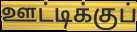
ஊட்டிக்குப்